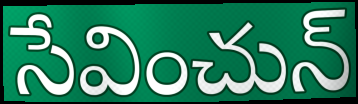
సేవించున్